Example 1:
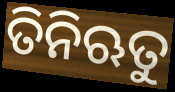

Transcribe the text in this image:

ତିନିଋତୁ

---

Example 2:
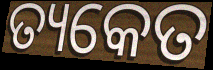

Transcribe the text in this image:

ତ୍ୟକେତ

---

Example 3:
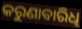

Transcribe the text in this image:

କରୁଣାବାରିଧି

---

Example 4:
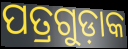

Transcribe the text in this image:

ପତ୍ରଗୁଡ଼ାକ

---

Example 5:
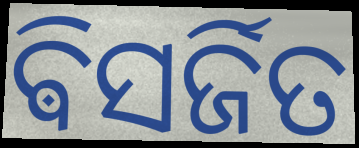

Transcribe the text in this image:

ଵିସର୍ଜିତ